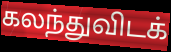
கலந்துவிடக்